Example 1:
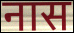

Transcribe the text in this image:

नास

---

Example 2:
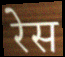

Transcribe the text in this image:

रेस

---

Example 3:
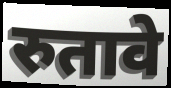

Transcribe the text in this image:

रुतावे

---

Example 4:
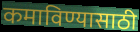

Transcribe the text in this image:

कमाविण्यासाठी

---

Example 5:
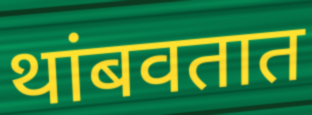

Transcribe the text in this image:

थांबवतात